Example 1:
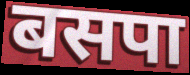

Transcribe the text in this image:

बसपा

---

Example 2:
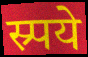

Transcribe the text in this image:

स्र्पये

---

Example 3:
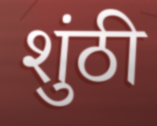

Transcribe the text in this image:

शुंठी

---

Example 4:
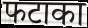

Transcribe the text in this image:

फटाका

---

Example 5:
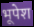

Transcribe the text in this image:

भूपेश